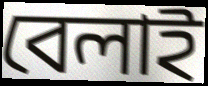
বেলাই